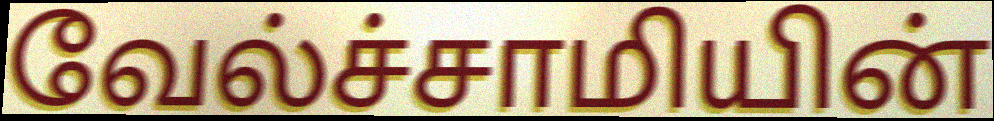
வேல்ச்சாமியின்